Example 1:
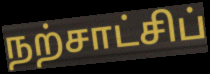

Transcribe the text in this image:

நற்சாட்சிப்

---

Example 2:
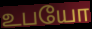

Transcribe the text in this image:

உபயோ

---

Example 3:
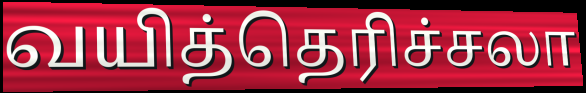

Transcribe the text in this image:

வயித்தெரிச்சலா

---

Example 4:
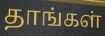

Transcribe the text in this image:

தாங்கள்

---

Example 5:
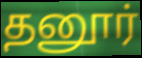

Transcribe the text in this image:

தனூர்